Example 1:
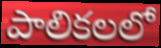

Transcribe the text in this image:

పాలికలలో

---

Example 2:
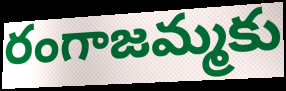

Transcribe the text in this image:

రంగాజమ్మకు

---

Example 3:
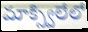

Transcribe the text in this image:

మాక్స్విలేలో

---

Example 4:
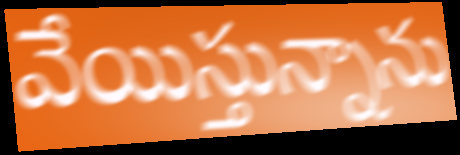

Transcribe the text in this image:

వేయిస్తున్నాను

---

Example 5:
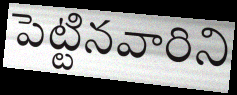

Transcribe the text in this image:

పెట్టినవారిని